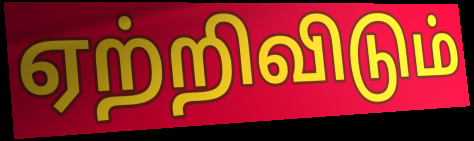
ஏற்றிவிடும்